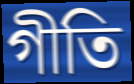
গীতি